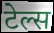
टेल्स